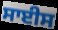
ਸਾਈਸ